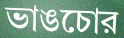
ভাঙচোর